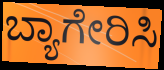
ಬ್ಯಾಗೇರಿಸಿ